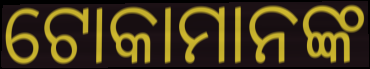
ଟୋକାମାନଙ୍କ